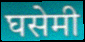
घसेमी